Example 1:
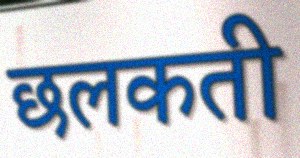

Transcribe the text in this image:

छलकती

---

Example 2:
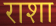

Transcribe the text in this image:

राशा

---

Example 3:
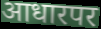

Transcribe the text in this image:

आधारपर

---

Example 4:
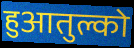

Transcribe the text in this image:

हुआतुल्को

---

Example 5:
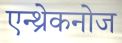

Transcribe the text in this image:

एन्थ्रेकनोज